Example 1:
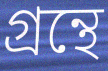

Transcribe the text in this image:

গ্রন্থে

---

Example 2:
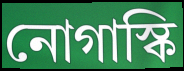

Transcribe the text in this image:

নোগাস্কি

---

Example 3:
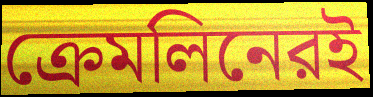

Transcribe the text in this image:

ক্রেমলিনেরই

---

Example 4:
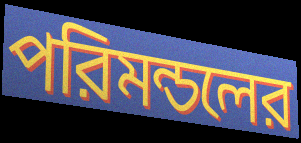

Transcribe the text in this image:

পরিমন্ডলের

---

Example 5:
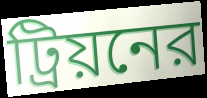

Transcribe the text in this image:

ট্রিয়নের